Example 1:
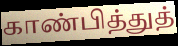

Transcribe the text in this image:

காண்பித்துத்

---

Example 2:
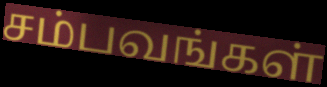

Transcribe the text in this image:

சம்பவங்கள்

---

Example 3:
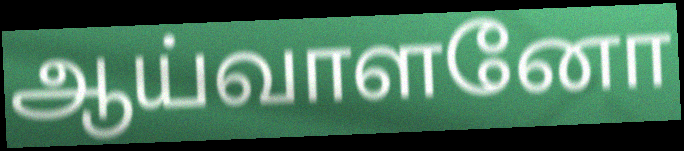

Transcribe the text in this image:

ஆய்வாளனோ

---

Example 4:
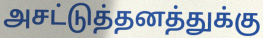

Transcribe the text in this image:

அசட்டுத்தனத்துக்கு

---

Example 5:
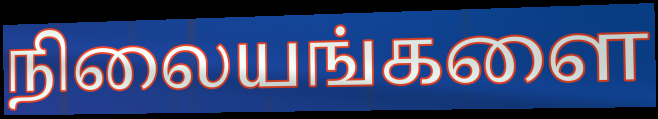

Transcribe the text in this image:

நிலையங்களை